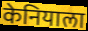
केनियाला